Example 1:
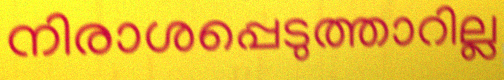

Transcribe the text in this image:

നിരാശപ്പെടുത്താറില്ല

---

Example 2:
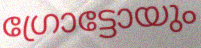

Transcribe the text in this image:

ഗ്രോട്ടോയും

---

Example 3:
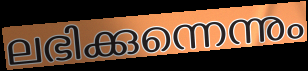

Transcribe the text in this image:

ലഭിക്കുന്നെന്നും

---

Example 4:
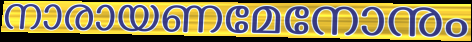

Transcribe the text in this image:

നാരായണമേനോനും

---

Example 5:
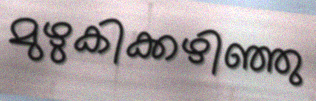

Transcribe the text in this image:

മുഴുകിക്കഴിഞ്ഞു